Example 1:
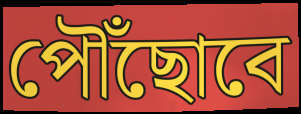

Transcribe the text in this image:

পৌঁছোবে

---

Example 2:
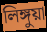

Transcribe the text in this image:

লিঙ্গুয়া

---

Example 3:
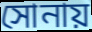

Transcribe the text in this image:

সোনায়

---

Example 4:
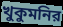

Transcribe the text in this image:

খুকুমনির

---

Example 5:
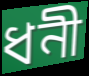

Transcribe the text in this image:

ধনী